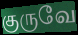
குருவே